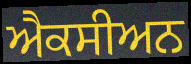
ਐਕਸੀਅਨ